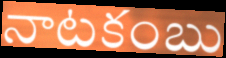
నాటకంబు